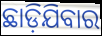
ଛାଡ଼ିଯିବାର